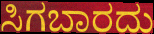
ಸಿಗಬಾರದು